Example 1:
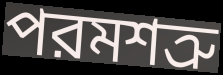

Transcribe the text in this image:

পরমশত্রু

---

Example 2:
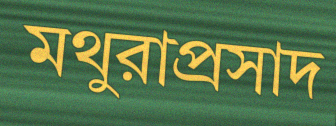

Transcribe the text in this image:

মথুরাপ্রসাদ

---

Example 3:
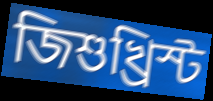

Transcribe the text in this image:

জিশুখ্রিস্ট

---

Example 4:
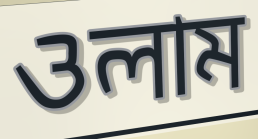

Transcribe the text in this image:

ওলাম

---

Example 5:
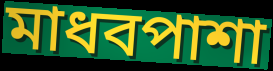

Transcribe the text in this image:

মাধবপাশা